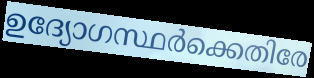
ഉദ്യോഗസ്ഥർക്കെതിരേ